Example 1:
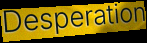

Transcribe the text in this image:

Desperation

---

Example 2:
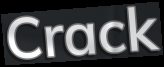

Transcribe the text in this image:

Crack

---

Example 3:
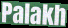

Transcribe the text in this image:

Palakh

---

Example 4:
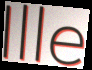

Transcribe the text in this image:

Ille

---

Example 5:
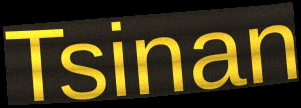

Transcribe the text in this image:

Tsinan